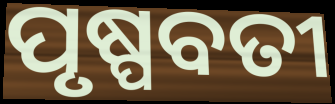
ପୃଷ୍ପବତୀ